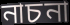
নাচনা